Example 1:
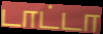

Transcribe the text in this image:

டாட்டா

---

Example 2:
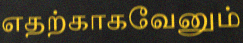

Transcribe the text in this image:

எதற்காகவேனும்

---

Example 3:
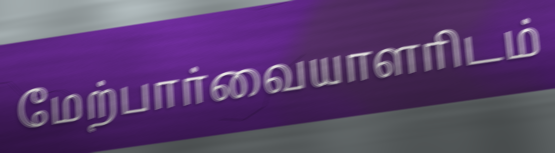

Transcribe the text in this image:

மேற்பார்வையாளரிடம்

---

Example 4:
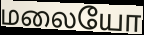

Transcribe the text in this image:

மலையோ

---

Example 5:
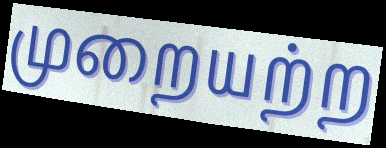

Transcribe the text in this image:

முறையற்ற